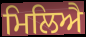
ਮਿਲਿਐ